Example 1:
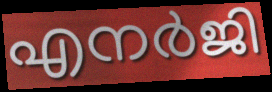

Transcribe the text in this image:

എനർജി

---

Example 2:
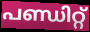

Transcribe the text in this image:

പണ്ഡിറ്റ്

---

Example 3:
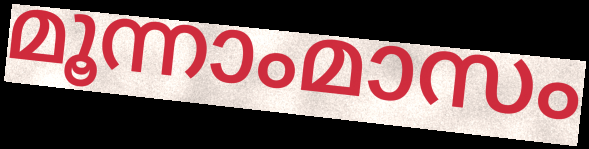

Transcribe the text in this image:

മൂന്നാംമാസം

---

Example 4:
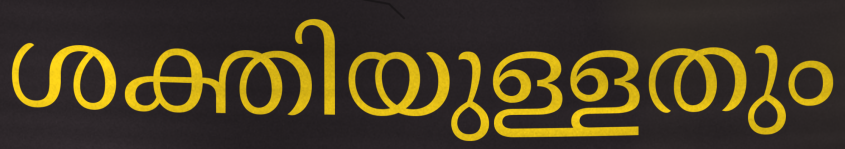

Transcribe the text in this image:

ശക്തിയുള്ളതും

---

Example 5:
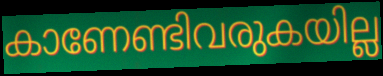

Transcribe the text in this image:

കാണേണ്ടിവരുകയില്ല